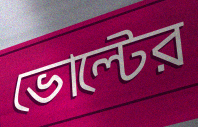
ভোল্টের